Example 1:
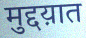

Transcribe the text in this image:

मुद्दय़ात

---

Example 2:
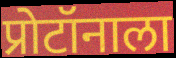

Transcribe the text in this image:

प्रोटॉनाला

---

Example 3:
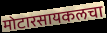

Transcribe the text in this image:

मोटारसायकलचा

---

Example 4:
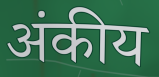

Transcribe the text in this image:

अंकीय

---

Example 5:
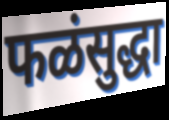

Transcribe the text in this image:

फळंसुद्धा